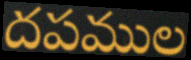
దపముల